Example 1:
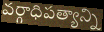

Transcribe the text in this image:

వర్గాధిపత్యాన్ని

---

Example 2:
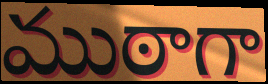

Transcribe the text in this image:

ముఠాగా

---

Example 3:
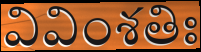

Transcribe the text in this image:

వివింశతిః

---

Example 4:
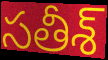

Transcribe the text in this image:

సతీశ్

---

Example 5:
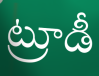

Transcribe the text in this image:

ట్రూడీ